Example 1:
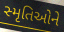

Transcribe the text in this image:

સ્મૃતિઓને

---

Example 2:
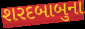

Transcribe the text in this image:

શરદબાબુના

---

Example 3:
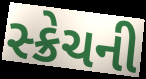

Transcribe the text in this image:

સ્ક્રેચની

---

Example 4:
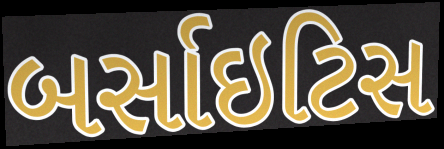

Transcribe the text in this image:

બર્સાઇટિસ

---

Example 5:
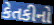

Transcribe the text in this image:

કેતકીનો